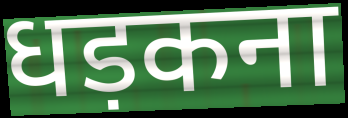
धड़कना